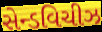
સેન્ડવિચીઝ